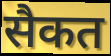
सैकत